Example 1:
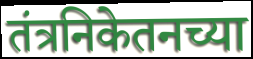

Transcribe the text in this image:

तंत्रनिकेतनच्या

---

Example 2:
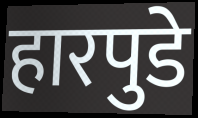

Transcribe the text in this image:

हारपुडे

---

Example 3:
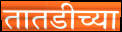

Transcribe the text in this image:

तातडीच्या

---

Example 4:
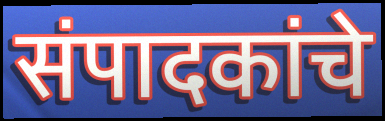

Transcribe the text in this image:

संपादकांचे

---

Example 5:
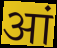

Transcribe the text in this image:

आं